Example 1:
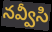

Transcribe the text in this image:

నవ్వీసి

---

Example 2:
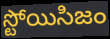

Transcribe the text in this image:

స్టోయిసిజం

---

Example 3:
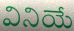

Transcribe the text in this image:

వినియే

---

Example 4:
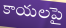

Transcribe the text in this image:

కాయలపై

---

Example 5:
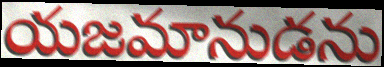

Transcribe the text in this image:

యజమానుడను